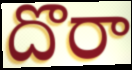
దొరా